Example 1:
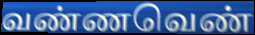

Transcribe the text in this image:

வண்ணவெண்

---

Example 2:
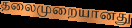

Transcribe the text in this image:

தலைமுறையானது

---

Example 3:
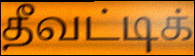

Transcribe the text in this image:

தீவட்டிக்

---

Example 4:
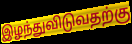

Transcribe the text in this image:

இழந்துவிடுவதற்கு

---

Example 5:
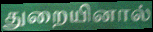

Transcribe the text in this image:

துறையினால்